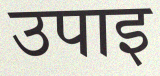
उपाइ